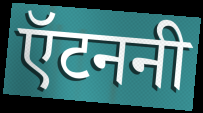
ऍटननी